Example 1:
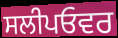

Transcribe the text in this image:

ਸਲੀਪਓਵਰ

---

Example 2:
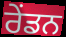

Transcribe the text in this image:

ਰੇਂਡਨ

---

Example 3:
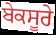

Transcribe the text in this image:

ਬੇਕਸੂਰੇ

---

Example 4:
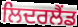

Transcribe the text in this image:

ਲਿਦਰਲੈਂਡ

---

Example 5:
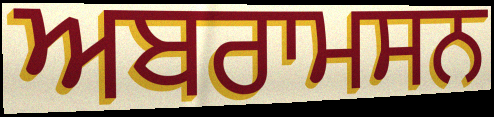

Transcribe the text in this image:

ਅਬਰਾਮਸਨ